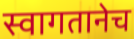
स्वागतानेच